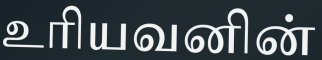
உரியவனின்